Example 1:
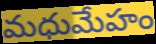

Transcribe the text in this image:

మధుమేహం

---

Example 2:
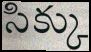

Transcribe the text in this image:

సిక్కు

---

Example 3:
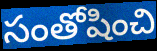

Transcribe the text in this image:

సంతోషించి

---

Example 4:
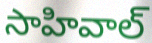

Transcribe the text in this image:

సాహివాల్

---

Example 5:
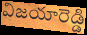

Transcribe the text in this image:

విజయారెడ్డి